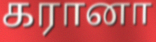
கரானா